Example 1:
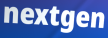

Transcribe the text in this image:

nextgen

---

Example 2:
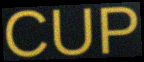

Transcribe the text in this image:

CUP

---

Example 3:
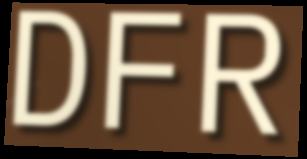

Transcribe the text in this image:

DFR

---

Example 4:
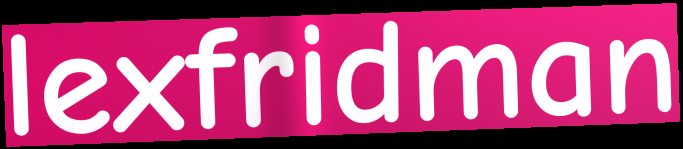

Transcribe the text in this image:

lexfridman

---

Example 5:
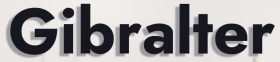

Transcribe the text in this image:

Gibralter